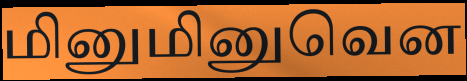
மினுமினுவென